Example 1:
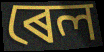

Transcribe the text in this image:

ৰেল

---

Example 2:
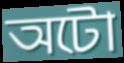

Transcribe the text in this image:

অটো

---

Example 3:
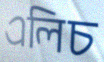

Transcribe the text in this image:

এলিচ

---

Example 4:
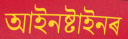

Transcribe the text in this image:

আইনষ্টাইনৰ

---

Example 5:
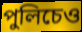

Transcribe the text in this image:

পুলিচেও